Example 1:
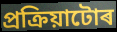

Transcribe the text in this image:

প্ৰক্ৰিয়াটোৰ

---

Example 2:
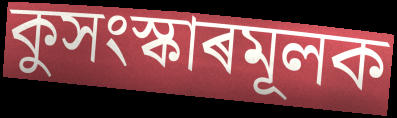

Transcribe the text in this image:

কুসংস্কাৰমূলক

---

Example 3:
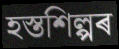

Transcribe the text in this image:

হস্তশিল্পৰ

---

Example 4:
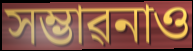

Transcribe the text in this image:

সম্ভাৱনাও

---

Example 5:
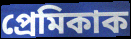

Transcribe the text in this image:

প্ৰেমিকাক